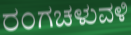
ರಂಗಚಳುವಳಿ